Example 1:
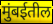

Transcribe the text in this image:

मुंबईतील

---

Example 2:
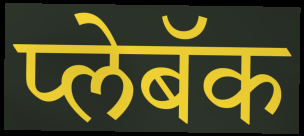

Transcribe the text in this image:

प्लेबॅक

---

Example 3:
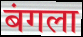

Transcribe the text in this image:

बंगला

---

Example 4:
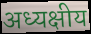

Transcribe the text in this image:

अध्यक्षीय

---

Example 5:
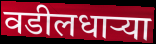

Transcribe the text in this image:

वडीलधार्‍या